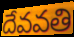
దేవవతి